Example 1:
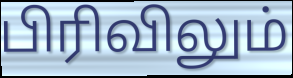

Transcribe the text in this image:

பிரிவிலும்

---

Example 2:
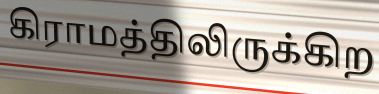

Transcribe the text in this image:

கிராமத்திலிருக்கிற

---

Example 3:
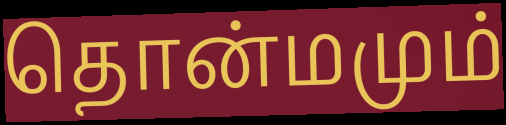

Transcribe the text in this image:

தொன்மமும்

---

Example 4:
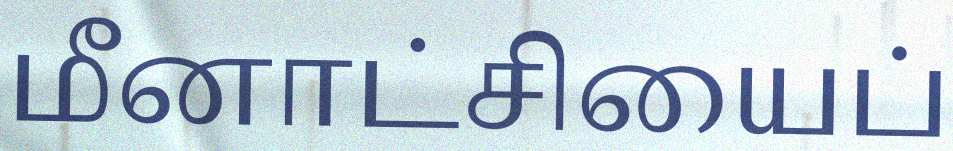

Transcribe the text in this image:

மீனாட்சியைப்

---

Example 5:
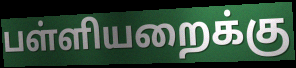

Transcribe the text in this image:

பள்ளியறைக்கு